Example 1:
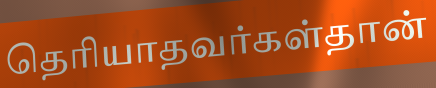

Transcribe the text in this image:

தெரியாதவர்கள்தான்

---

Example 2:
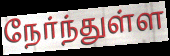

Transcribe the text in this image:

நேர்ந்துள்ள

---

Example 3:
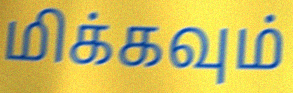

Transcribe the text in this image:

மிக்கவும்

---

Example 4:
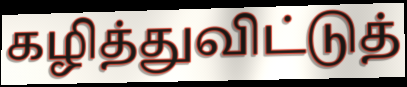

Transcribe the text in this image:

கழித்துவிட்டுத்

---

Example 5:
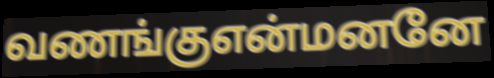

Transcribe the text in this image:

வணங்குஎன்மனனே